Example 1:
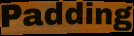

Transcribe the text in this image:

Padding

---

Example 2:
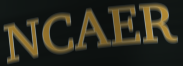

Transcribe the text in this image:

NCAER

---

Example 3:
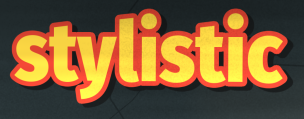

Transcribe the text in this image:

stylistic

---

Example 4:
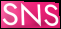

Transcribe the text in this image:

SNS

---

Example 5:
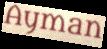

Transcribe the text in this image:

Ayman